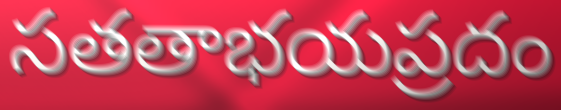
సతతాభయప్రదం